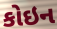
કોઇન